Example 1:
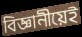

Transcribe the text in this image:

বিজ্ঞানীয়েই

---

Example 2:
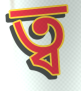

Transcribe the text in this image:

ত্ব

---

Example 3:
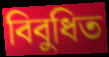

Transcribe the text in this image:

বিবুধিত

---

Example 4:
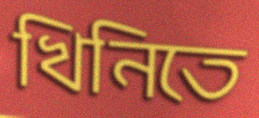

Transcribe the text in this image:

খিনিতে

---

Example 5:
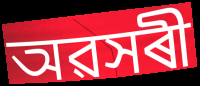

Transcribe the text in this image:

অৱসৰী